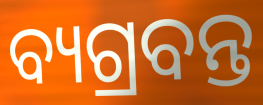
ବ୍ୟଗ୍ରବନ୍ତ